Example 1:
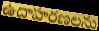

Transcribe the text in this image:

ఉదాహరణలను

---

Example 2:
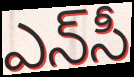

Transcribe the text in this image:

ఎన్‌సీ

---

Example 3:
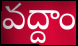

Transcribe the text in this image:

వద్దాం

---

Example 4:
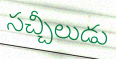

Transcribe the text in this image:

సచ్చీలుడు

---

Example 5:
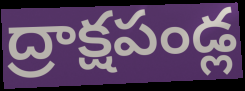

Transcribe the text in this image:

ద్రాక్షపండ్ల